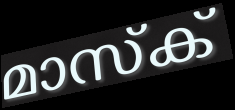
മാസ്‌ക്